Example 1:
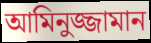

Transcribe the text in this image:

আমিনুজ্জামান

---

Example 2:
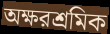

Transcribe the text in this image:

অক্ষরশ্রমিক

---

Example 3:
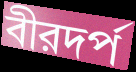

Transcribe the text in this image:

বীরদর্প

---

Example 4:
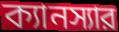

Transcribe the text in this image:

ক্যানস্যার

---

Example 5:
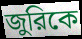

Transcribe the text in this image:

জুরিকে